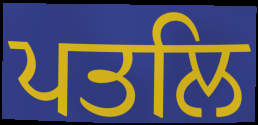
ਪਤਲਿ